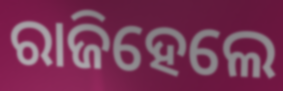
ରାଜିହେଲେ